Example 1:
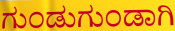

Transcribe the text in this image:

ಗುಂಡುಗುಂಡಾಗಿ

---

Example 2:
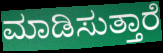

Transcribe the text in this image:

ಮಾಡಿಸುತ್ತಾರೆ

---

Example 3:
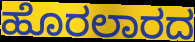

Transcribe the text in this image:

ಹೊರಲಾರದ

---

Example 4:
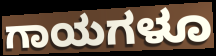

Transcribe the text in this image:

ಗಾಯಗಳೂ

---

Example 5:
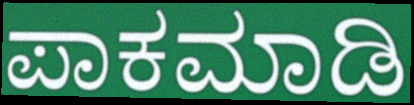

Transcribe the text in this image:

ಪಾಕಮಾಡಿ